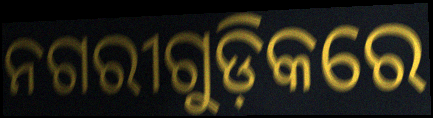
ନଗରୀଗୁଡ଼ିକରେ